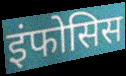
इंफोसिस